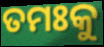
ତମଃକୁ